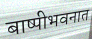
बाष्पीभवनात